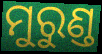
ମୁରୁଣ୍ଡ